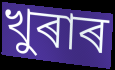
খুৰাৰ